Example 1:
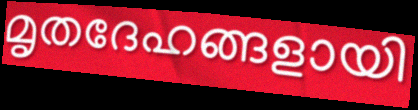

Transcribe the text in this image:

മൃതദേഹങ്ങളായി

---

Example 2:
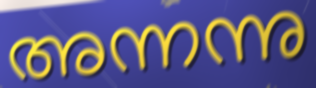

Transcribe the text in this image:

അന്നന്നു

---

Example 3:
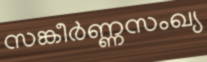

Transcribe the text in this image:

സങ്കീർണ്ണസംഖ്യ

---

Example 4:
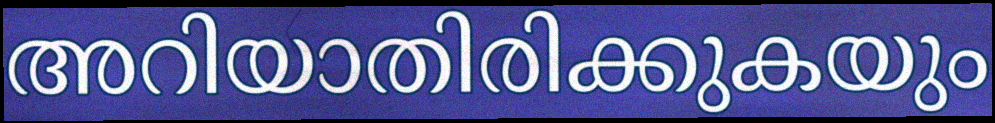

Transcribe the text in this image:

അറിയാതിരിക്കുകയും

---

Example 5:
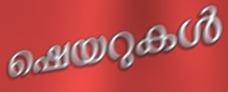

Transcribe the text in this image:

ഷെയറുകൾ